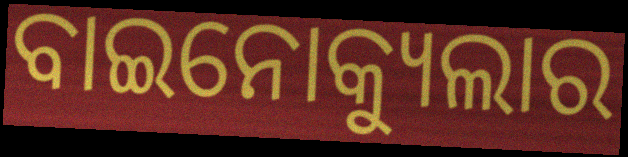
ବାଇନୋକ୍ୟୁଲାର